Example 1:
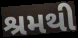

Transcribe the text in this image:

શ્રમથી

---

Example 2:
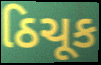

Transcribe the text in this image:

ઠિચૂક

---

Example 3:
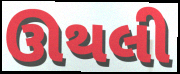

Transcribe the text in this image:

ઊથલી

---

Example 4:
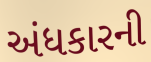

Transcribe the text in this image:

અંધકારની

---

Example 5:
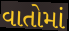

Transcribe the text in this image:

વાતોમાં